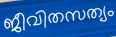
ജീവിതസത്യം